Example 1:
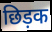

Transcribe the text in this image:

छिड़क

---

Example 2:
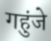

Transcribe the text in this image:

गहुंजे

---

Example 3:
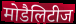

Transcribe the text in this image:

मोडैलिटीज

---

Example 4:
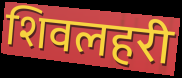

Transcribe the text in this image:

शिवलहरी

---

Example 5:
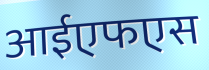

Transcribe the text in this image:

आईएफएस